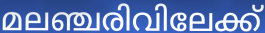
മലഞ്ചരിവിലേക്ക്